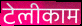
टेलीकाम